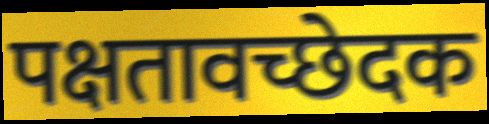
पक्षतावच्छेदक